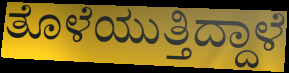
ತೊಳೆಯುತ್ತಿದ್ದಾಳೆ